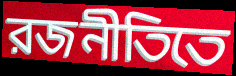
রজনীতিতে